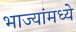
भाज्यांमध्ये